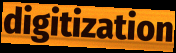
digitization